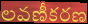
లవణీకరణ